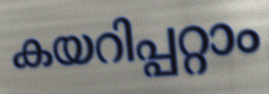
കയറിപ്പറ്റാം